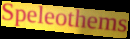
Speleothems